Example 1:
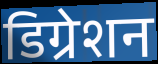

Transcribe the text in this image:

डिग्रेशन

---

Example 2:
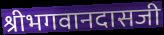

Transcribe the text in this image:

श्रीभगवानदासजी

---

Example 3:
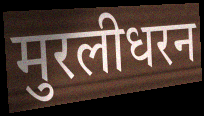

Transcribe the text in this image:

मुरलीधरन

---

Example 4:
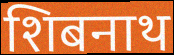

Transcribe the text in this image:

शिबनाथ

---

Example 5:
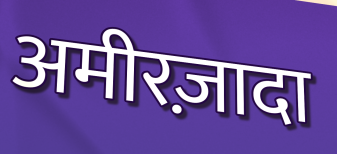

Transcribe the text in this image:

अमीरज़ादा